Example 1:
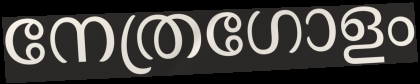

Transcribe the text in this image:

നേത്രഗോളം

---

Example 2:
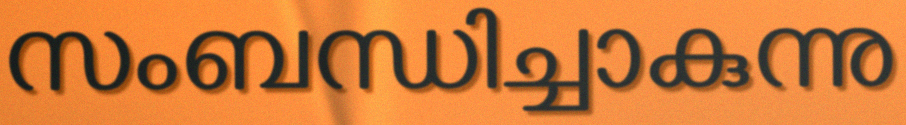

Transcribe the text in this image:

സംബന്ധിച്ചാകുന്നു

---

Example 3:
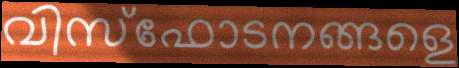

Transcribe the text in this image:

വിസ്ഫോടനങ്ങളെ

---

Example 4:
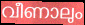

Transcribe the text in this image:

വീണാലും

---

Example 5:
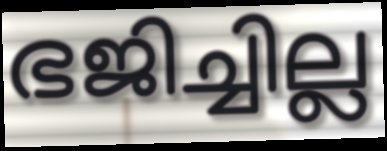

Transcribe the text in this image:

ഭജിച്ചില്ല